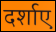
दर्शाए